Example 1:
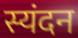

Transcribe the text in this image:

स्यंदन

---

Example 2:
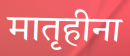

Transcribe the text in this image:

मातृहीना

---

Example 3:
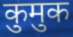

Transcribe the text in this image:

कुमुक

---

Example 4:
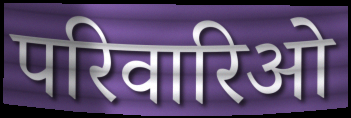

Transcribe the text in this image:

परिवारिओ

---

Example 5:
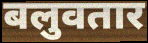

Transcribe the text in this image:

बलुवतार